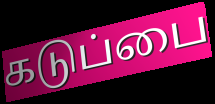
கடுப்பை